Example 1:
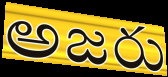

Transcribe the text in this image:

అజరు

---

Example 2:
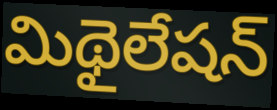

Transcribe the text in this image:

మిథైలేషన్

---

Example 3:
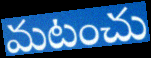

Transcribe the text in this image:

మటంచు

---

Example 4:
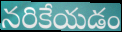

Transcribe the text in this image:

నరికేయడం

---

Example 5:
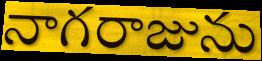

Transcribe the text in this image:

నాగరాజును